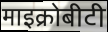
माइक्रोबीटी